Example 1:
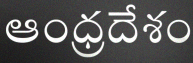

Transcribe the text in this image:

ఆంధ్రదేశం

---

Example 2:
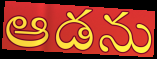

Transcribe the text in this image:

ఆడను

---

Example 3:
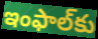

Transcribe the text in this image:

ఇంఫాల్‌కు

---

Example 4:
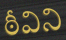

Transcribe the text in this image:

ఠీవిని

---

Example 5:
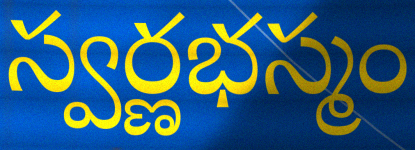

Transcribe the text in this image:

స్వర్ణభస్మం